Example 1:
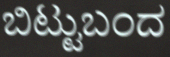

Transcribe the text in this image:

ಬಿಟ್ಟುಬಂದ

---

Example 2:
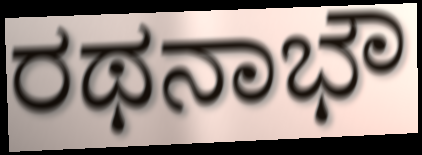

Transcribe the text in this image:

ರಥನಾಭೌ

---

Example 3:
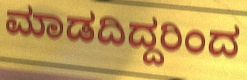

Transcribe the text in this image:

ಮಾಡದಿದ್ದರಿಂದ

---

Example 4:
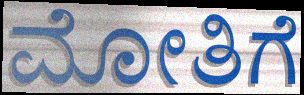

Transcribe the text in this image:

ಮೋತಿಗೆ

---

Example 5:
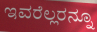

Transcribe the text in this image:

ಇವರೆಲ್ಲರನ್ನೂ